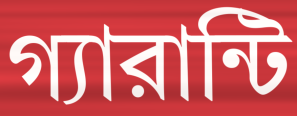
গ্যারান্টি